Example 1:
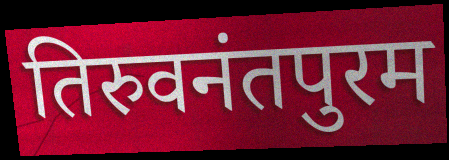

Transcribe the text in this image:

तिरुवनंतपुरम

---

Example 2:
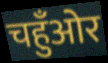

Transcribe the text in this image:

चहुँओर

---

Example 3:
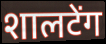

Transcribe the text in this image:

शालटेंग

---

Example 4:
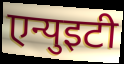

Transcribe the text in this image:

एन्युइटी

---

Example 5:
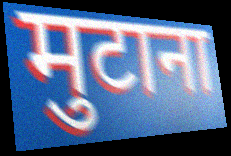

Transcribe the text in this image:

मुटाना